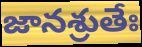
జానశ్రుతేః